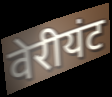
वेरीयंट